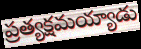
ప్రత్యక్షమయ్యాడు